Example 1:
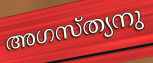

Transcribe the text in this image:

അഗസ്ത്യനു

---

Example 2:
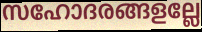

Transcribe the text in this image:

സഹോദരങ്ങളല്ലേ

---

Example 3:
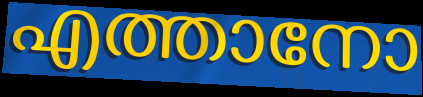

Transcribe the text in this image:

എത്താനോ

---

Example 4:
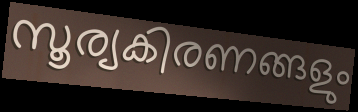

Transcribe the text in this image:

സൂര്യകിരണങ്ങളും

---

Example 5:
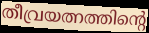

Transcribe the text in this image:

തീവ്രയത്നത്തിന്റെ